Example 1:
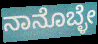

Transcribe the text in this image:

ನಾನೊಬ್ಳೇ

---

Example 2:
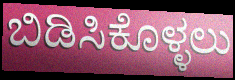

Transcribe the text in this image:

ಬಿಡಿಸಿಕೊಳ್ಳಲು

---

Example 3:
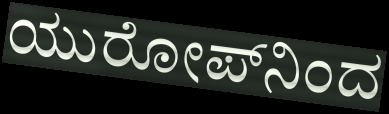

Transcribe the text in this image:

ಯುರೋಪ್‌ನಿಂದ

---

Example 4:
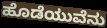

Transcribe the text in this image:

ಹೊಡೆಯುವೆನು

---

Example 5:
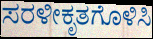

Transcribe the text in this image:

ಸರಳೀಕೃತಗೊಳಿಸಿ